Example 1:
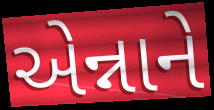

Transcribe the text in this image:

એન્નાને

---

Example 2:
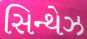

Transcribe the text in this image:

સિન્થેઝ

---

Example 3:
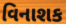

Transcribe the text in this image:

વિનાશક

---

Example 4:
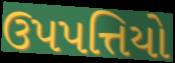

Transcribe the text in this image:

ઉપપત્તિયો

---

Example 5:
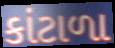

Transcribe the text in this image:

કાંટાળા